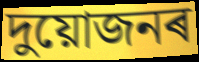
দুয়োজনৰ